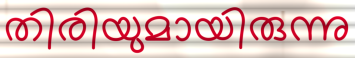
തിരിയുമായിരുന്നു